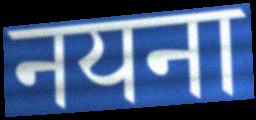
नयना